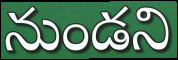
నుండని